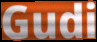
Gudi